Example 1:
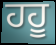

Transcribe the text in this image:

ਹਹੂ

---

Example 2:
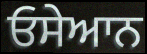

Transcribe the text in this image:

ਓਸੇਆਨ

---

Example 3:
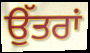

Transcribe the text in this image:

ਉੱਤਰਾਂ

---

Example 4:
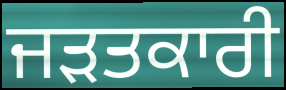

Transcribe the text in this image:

ਜੜਤਕਾਰੀ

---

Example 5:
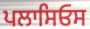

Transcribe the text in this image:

ਪਲਾਸਿਓਸ